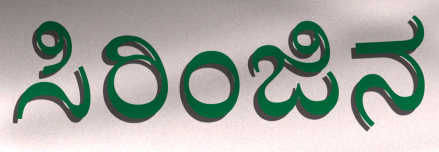
ಸಿರಿಂಜಿನ